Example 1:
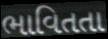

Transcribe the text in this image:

ભાવિતતા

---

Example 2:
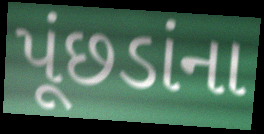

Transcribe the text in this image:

પૂંછડાંના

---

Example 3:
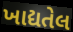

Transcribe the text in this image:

ખાદ્યતેલ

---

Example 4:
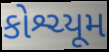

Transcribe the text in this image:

કોશ્ચ્યૂમ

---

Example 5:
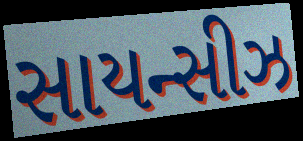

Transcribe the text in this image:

સાયન્સીઝ